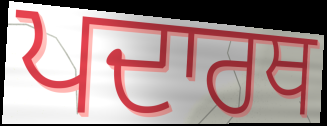
ਪਦਾਰਥ